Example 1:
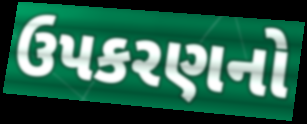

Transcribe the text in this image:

ઉપકરણનો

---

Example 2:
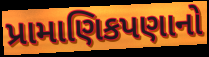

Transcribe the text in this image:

પ્રામાણિકપણાનો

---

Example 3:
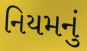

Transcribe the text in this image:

નિયમનું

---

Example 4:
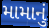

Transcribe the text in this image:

મામાનું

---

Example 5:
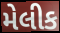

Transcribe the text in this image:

મેલીક